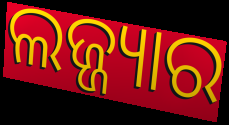
ଲଜ୍ଜ୍ୟାର